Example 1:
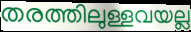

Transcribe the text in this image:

തരത്തിലുള്ളവയല്ല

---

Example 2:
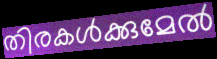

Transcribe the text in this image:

തിരകൾക്കുമേൽ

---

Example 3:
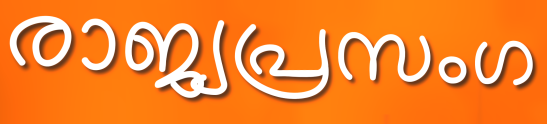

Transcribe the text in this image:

രാജ്യപ്രസംഗ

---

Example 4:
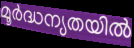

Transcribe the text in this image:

മൂർദ്ധന്യതയിൽ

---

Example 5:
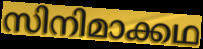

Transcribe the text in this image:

സിനിമാക്കഥ